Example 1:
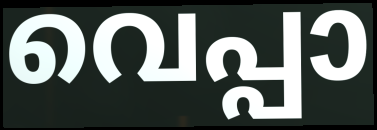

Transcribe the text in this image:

വെപ്പാ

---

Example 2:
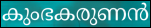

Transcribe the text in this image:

കുംഭകരുണൻ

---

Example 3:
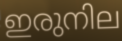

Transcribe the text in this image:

ഇരുനില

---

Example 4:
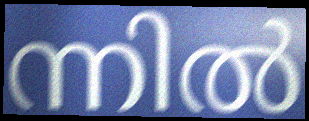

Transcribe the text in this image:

ന്നിൽ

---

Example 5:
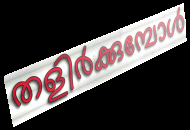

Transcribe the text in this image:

തളിർക്കുമ്പോൾ